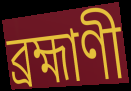
ব্রহ্মাণী